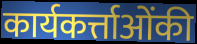
कार्यकर्त्ताओंकी